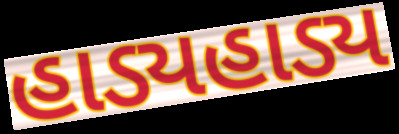
હાડ્યહાડ્ય